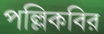
পল্লিকবির